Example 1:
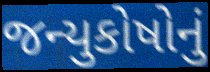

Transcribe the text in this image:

જન્યુકોષોનું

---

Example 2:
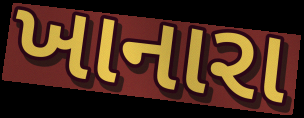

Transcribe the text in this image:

ખાનારા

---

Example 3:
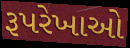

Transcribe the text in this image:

રૂપરેખાઓ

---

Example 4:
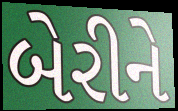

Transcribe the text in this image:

બેરીને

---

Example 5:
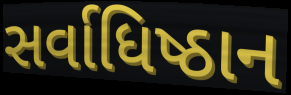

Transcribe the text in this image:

સર્વાધિષ્ઠાન